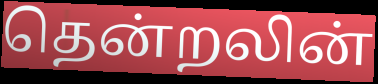
தென்றலின்